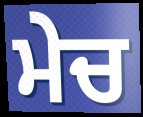
ਮੇਚ